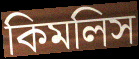
কিমলিস